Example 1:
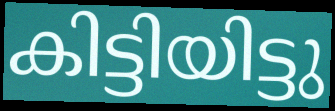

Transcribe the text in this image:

കിട്ടിയിട്ടു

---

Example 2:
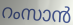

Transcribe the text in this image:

റംസാൻ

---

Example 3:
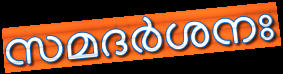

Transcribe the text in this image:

സമദർശനഃ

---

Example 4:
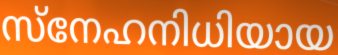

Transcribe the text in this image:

സ്നേഹനിധിയായ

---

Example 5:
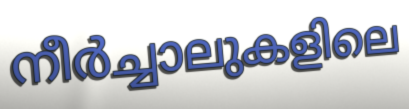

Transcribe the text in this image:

നീർച്ചാലുകളിലെ